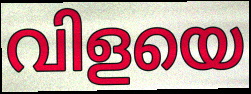
വിളയെ